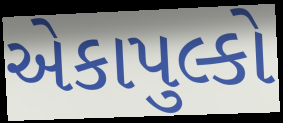
એકાપુલ્કો